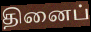
தினைப்